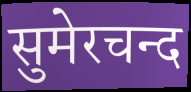
सुमेरचन्द